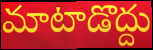
మాటాడొద్దు